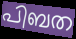
പിബത